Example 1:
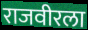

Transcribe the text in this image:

राजवीरला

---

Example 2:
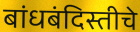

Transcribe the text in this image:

बांधबंदिस्तीचे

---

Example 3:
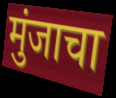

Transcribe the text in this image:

मुंजाचा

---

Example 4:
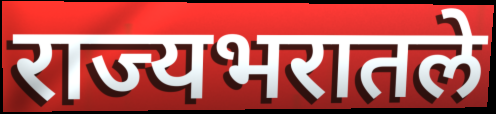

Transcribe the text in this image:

राज्यभरातले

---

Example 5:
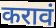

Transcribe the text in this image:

करावं